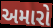
અમારો